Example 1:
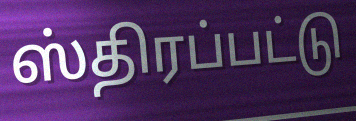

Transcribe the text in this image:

ஸ்திரப்பட்டு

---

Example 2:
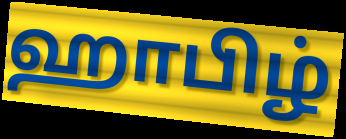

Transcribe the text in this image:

ஹாபிழ்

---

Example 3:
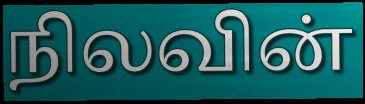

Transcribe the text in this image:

நிலவின்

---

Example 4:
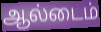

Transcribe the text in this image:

ஆல்டைம்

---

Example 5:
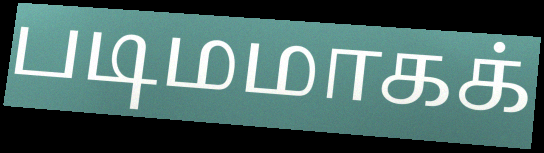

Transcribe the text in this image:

படிமமாகக்